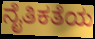
ನೈತಿಕತೆಯ